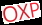
OXP